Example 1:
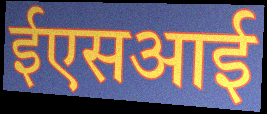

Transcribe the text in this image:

ईएसआई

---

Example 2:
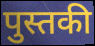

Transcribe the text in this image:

पुस्तकी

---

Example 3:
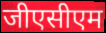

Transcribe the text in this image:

जीएसीएम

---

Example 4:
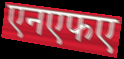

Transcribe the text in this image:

एनएफए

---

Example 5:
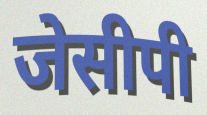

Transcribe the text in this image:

जेसीपी